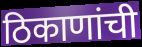
ठिकाणांची